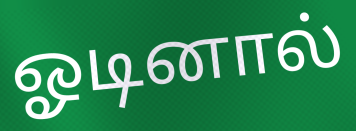
ஓடினால்